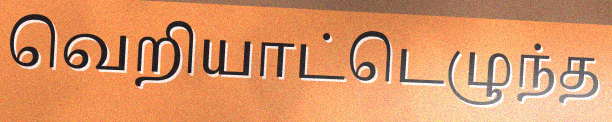
வெறியாட்டெழுந்த